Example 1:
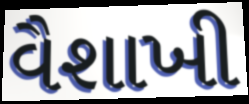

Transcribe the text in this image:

વૈશાખી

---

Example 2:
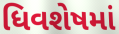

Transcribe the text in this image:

ધિવશેષમાં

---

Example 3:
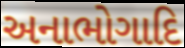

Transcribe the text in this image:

અનાભોગાદિ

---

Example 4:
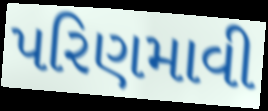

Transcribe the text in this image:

પરિણમાવી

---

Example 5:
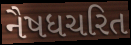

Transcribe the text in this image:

નૈષધચરિત